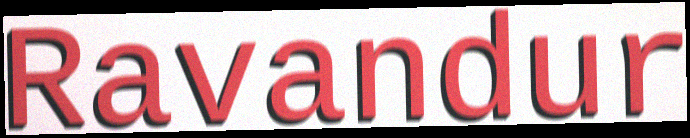
Ravandur